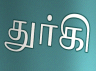
துர்கி